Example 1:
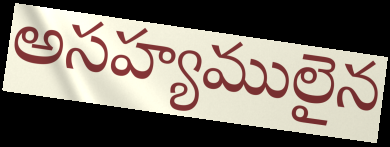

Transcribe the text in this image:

అసహ్యములైన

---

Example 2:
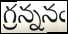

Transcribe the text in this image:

గ్రన్ననఁ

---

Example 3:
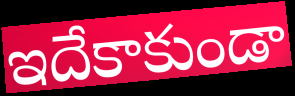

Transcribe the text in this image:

ఇదేకాకుండా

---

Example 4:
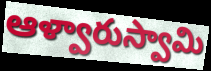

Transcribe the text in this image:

ఆళ్వారుస్వామి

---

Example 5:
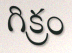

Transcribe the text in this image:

గిక్రం